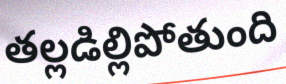
తల్లడిల్లిపోతుంది